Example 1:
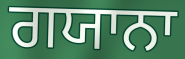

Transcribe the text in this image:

ਗਯਾਨਾ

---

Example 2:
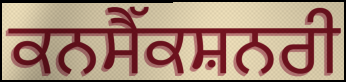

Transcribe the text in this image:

ਕਨਸੈੱਕਸ਼ਨਰੀ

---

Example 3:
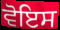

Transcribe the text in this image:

ਵੋਇਸ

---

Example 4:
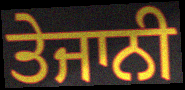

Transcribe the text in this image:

ਤੇਜਾਨੀ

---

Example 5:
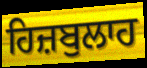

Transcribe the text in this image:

ਹਿਜ਼ਬੁਲਾਹ